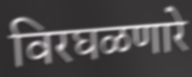
विरघळणारे